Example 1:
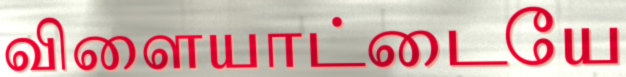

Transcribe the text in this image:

விளையாட்டையே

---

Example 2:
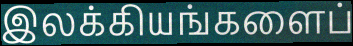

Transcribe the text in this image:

இலக்கியங்களைப்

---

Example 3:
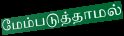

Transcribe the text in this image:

மேம்படுத்தாமல்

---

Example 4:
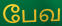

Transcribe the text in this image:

பேவ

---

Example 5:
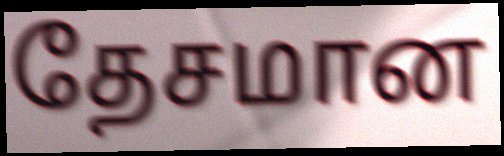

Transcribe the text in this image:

தேசமான